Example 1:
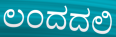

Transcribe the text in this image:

ಲಂದದಲಿ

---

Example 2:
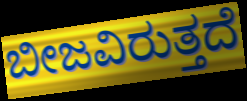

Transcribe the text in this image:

ಬೀಜವಿರುತ್ತದೆ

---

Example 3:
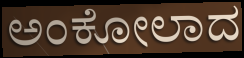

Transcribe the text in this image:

ಅಂಕೋಲಾದ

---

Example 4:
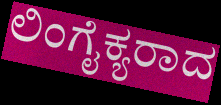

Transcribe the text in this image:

ಲಿಂಗೈಕ್ಯರಾದ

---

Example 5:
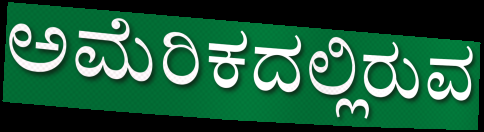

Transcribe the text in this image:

ಅಮೆರಿಕದಲ್ಲಿರುವ